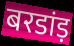
बरडांड़